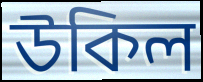
উকিল